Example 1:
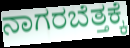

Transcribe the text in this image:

ನಾಗರಬೆತ್ತಕ್ಕೆ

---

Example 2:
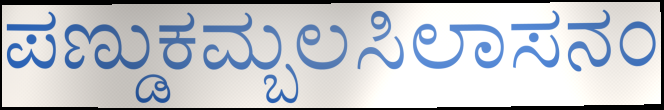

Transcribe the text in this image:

ಪಣ್ಡುಕಮ್ಬಲಸಿಲಾಸನಂ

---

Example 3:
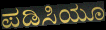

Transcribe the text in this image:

ಪಡಿಸಿಯೂ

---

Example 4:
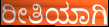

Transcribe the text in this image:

ರೀತಿಯಾಗಿ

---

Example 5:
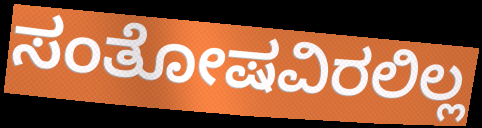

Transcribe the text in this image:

ಸಂತೋಷವಿರಲಿಲ್ಲ